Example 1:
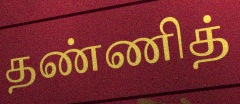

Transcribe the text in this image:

தண்ணித்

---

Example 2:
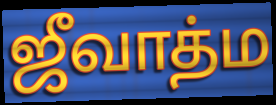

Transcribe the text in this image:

ஜீவாத்ம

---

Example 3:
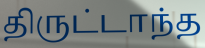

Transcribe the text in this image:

திருட்டாந்த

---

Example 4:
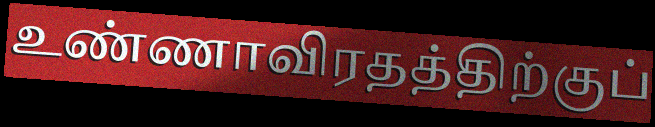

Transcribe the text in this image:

உண்ணாவிரதத்திற்குப்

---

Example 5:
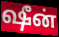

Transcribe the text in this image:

ஷீன்